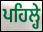
ਪਹਿਲ੍ਹੇ